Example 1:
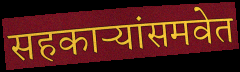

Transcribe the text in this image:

सहकाऱ्यांसमवेत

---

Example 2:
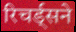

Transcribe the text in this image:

रिचर्ड्सने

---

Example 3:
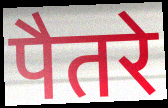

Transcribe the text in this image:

पैतरे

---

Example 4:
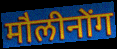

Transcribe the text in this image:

मौलीनोंग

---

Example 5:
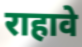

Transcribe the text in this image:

राहावे